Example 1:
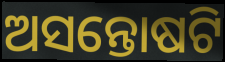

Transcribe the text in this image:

ଅସନ୍ତୋଷଟି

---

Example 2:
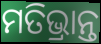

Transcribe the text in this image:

ମତିଭ୍ରାନ୍ତ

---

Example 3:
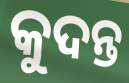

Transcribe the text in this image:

କୁଦନ୍ତ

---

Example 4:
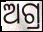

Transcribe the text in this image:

ଅଗ୍ର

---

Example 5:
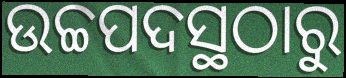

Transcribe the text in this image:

ଉଚ୍ଚପଦସ୍ଥଠାରୁ